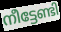
നീട്ടേണ്ടി